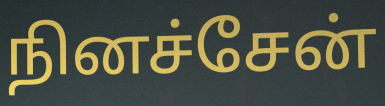
நினச்சேன்